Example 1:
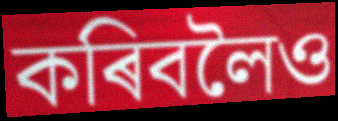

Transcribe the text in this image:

কৰিবলৈও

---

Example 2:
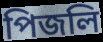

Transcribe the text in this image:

পিজলি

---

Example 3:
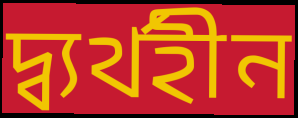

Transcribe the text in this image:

দ্ব্যৰ্থহীন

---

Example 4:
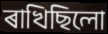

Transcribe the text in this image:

ৰাখিছিলো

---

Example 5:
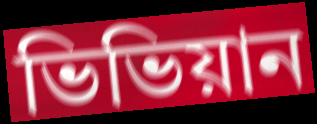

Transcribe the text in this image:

ভিভিয়ান